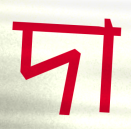
দা